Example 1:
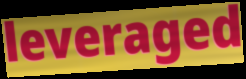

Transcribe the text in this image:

leveraged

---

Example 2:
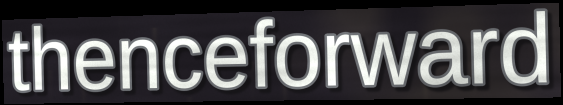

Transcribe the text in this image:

thenceforward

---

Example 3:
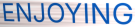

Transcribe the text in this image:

ENJOYING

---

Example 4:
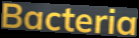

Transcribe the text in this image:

Bacteria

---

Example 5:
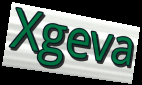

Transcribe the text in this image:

Xgeva